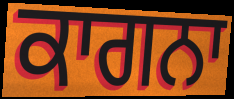
ਕਾਗਨਾ